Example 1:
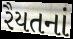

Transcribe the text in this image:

રૈયતનાં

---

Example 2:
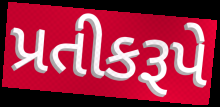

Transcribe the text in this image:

પ્રતીકરૂપે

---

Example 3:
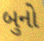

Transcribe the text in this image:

બુનો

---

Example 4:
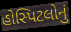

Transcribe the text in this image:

હોસ્પિટલોનું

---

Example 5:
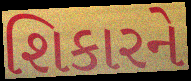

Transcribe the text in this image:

શિકારને